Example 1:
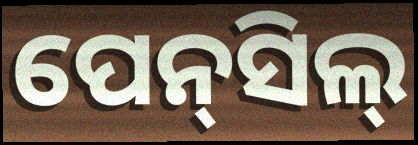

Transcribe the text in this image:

ପେନ୍‌ସିଲ୍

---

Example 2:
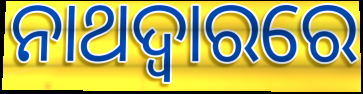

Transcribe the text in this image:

ନାଥଦ୍ୱାରରେ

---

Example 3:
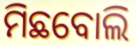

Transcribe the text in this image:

ମିଛବୋଲି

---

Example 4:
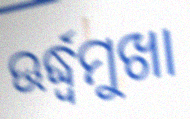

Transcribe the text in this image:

ଊର୍ଦ୍ଧ୍ବମୁଖା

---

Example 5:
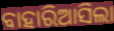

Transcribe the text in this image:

ବାହାରିଆସିଲା